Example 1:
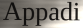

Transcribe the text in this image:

Appadi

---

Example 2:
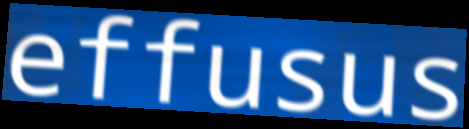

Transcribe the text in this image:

effusus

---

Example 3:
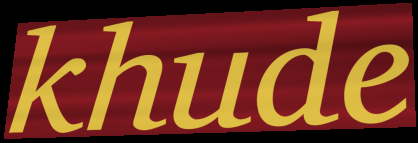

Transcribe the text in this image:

khude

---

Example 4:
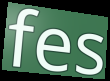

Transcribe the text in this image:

fes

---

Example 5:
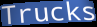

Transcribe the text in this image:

Trucks